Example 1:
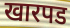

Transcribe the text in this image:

खारपड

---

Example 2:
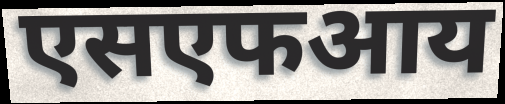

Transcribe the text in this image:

एसएफआय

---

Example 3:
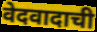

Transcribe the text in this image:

वेदवादाची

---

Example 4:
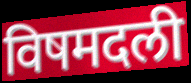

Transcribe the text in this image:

विषमदली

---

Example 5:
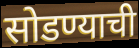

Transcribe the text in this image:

सोडण्याची